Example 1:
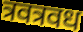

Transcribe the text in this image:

त्रवत्रवध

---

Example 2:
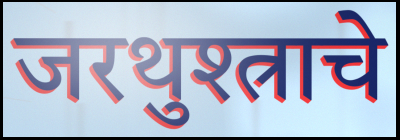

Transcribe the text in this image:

जरथुश्त्राचे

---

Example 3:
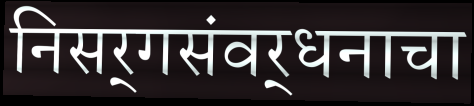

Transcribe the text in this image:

निसर्गसंवर्धनाचा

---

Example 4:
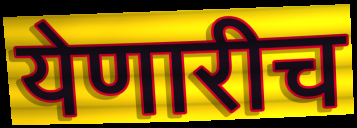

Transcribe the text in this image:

येणारीच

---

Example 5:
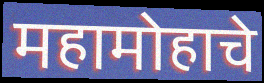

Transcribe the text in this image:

महामोहाचे